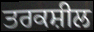
ਤਰਕਸ਼ੀਲ